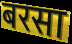
बरसा